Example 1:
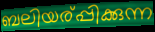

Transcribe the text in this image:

ബലിയര്പ്പിക്കുന്ന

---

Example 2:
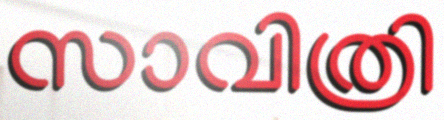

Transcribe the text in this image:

സാവിത്രി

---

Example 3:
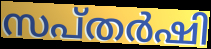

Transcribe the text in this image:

സപ്തർഷി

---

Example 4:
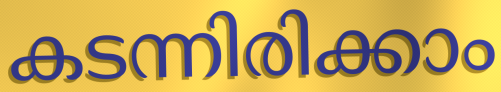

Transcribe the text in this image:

കടന്നിരിക്കാം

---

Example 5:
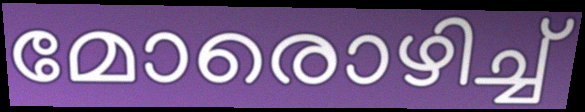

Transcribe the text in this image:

മോരൊഴിച്ച്